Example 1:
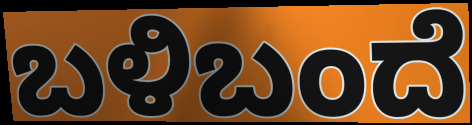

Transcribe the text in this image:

ಬಳಿಬಂದೆ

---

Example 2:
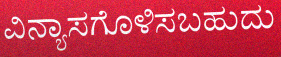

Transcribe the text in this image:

ವಿನ್ಯಾಸಗೊಳಿಸಬಹುದು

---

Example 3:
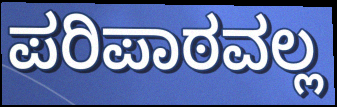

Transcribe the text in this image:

ಪರಿಪಾಠವಲ್ಲ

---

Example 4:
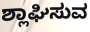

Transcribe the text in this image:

ಶ್ಲಾಘಿಸುವ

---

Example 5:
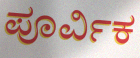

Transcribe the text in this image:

ಪೂರ್ವಿಕ